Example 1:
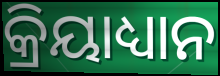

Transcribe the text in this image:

କ୍ରିୟାଧ୍ୟାନ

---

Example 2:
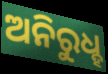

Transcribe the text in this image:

ଅନିରୁଧ୍ହ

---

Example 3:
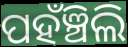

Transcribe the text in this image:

ପହଁଞ୍ଚିଲି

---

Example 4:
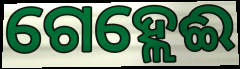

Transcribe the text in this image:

ଗେହ୍ଲେଈ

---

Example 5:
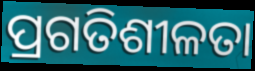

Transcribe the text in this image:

ପ୍ରଗତିଶୀଳତା